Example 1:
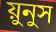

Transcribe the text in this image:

য়ুনুস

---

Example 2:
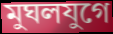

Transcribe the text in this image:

মুঘলযুগে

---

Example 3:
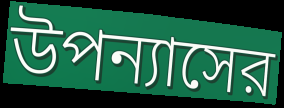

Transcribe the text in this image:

উপন্যাসের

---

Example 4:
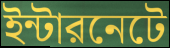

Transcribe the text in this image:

ইন্টারনেটে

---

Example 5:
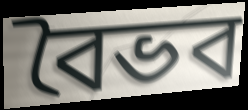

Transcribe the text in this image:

বৈভব